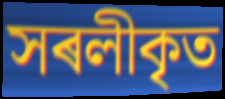
সৰলীকৃত